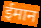
ईमान